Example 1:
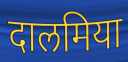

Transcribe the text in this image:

दालमिया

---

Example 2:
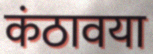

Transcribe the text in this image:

कंठावया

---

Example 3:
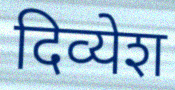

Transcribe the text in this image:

दिव्येश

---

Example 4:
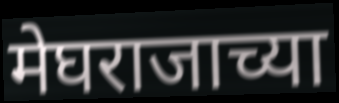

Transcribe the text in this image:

मेघराजाच्या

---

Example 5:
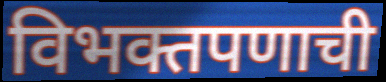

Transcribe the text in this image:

विभक्तपणाची